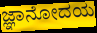
ಜ್ಞಾನೋದಯ